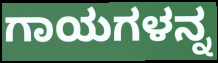
ಗಾಯಗಳನ್ನ